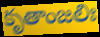
కృతాంజలిః